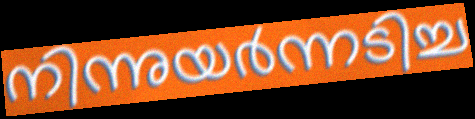
നിന്നുയർന്നടിച്ച